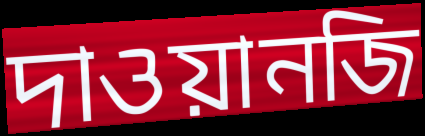
দাওয়ানজি